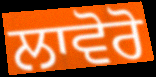
ਲਾਵੋਰੋ